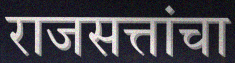
राजसत्तांचा